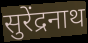
सुरेंद्रनाथ